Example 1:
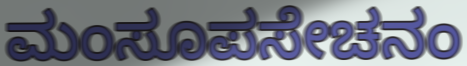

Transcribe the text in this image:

ಮಂಸೂಪಸೇಚನಂ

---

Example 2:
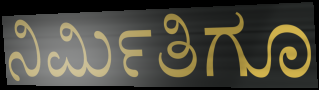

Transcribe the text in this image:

ನಿರ್ಮಿತಿಗೂ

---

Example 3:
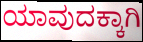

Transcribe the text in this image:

ಯಾವುದಕ್ಕಾಗಿ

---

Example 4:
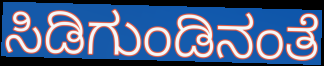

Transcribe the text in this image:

ಸಿಡಿಗುಂಡಿನಂತೆ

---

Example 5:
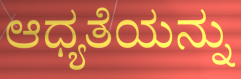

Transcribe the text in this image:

ಆಧ್ಯತೆಯನ್ನು